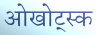
ओखोट्स्क